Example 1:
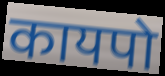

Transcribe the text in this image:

कायपो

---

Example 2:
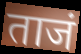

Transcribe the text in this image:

ताजं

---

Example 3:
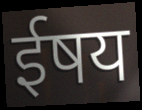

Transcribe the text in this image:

ईषय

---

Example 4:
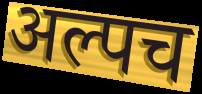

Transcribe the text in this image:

अल्पच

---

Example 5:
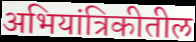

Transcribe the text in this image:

अभियांत्रिकीतील